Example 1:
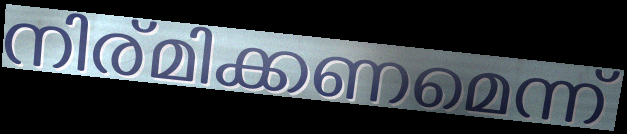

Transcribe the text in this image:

നിര്മിക്കണമെന്ന്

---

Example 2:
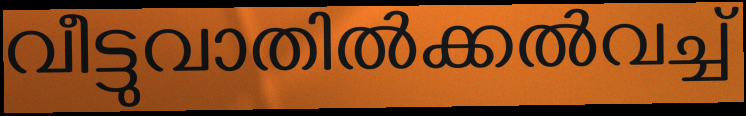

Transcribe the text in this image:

വീട്ടുവാതിൽക്കൽവച്ച്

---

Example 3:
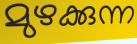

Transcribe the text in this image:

മുഴക്കുന്ന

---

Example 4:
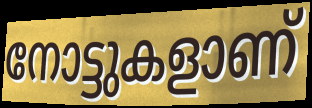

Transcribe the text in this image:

നോട്ടുകളാണ്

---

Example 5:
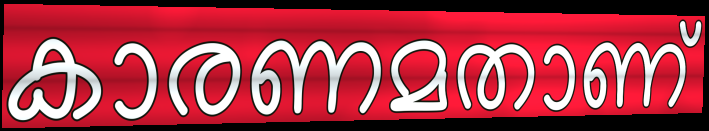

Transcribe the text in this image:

കാരണമതാണ്